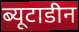
ब्यूटाडीन